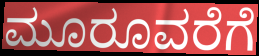
ಮೂರೂವರೆಗೆ